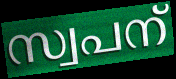
സ്വപന്